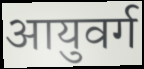
आयुवर्ग